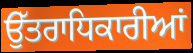
ਉੱਤਰਾਧਿਕਾਰੀਆਂ